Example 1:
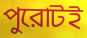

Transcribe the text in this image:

পুরোটই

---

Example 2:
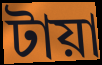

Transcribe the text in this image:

টায়া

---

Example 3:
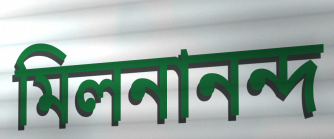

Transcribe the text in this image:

মিলনানন্দ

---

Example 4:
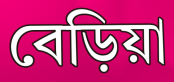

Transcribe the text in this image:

বেড়িয়া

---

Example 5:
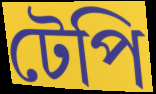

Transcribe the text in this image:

টেপি